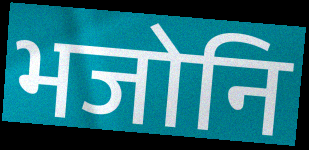
भजोनि